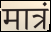
मात्रं